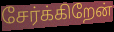
சேர்க்கிறேன்